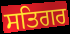
ਸਤਿਗਰ